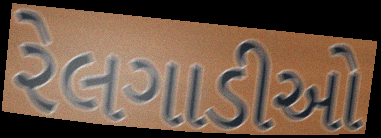
રેલગાડીઓ